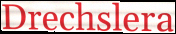
Drechslera